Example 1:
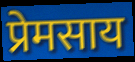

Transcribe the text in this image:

प्रेमसाय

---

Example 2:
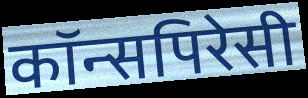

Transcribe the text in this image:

कॉन्सपिरेसी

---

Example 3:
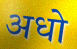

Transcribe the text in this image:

अधो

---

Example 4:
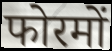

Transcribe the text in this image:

फोरमों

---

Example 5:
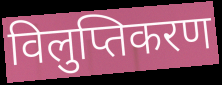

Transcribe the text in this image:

विलुप्तिकरण